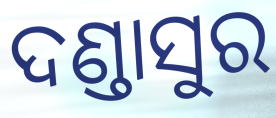
ଦଣ୍ଡାସୁର